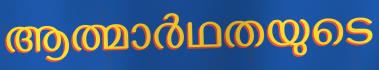
ആത്മാർഥതയുടെ